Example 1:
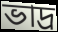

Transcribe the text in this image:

ভাদ্ৰ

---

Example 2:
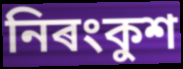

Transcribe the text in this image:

নিৰংকুশ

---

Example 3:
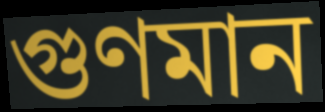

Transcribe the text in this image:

গুণমান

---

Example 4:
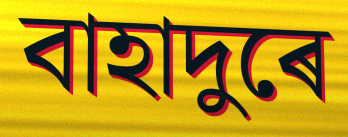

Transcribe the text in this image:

বাহাদুৰে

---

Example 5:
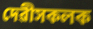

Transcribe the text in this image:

দেৱীসকলক